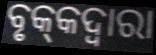
ବୃକ୍‌କଦ୍ଵାରା